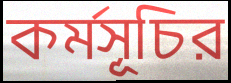
কর্মসূচির